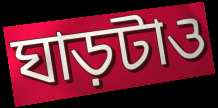
ঘাড়টাও